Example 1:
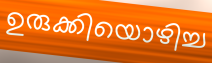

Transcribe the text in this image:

ഉരുക്കിയൊഴിച്ച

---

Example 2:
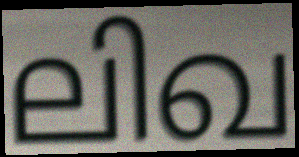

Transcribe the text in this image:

ലിഖ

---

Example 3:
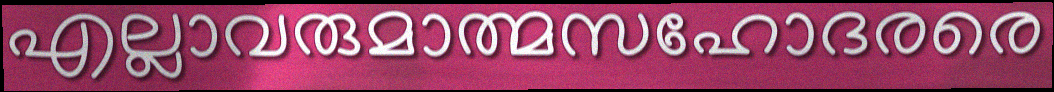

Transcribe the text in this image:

എല്ലാവരുമാത്മസഹോദരരെ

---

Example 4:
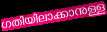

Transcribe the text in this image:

ഗതിയിലാക്കാനുള്ള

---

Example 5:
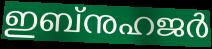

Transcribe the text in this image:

ഇബ്നുഹജർ